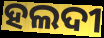
ହଲଦୀ